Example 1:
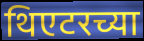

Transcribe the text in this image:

थिएटरच्या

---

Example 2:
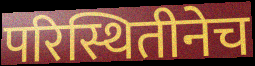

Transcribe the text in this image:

परिस्थितीनेच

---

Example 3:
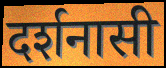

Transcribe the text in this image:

दर्शनासी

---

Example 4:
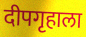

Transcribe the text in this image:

दीपगृहाला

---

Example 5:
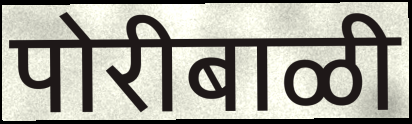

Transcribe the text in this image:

पोरीबाळी